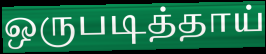
ஒருபடித்தாய்